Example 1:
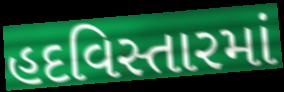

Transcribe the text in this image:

હદવિસ્તારમાં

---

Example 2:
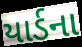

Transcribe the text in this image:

યાર્ડના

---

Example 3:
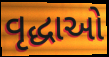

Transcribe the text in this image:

વૃદ્ધાઓ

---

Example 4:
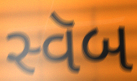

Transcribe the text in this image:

સ્વૅબ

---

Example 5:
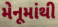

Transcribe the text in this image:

મેનૂમાંથી